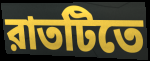
রাতটিতে